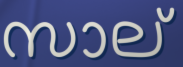
സാല്